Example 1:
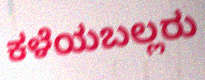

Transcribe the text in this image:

ಕಳೆಯಬಲ್ಲರು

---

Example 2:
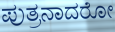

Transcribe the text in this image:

ಪುತ್ರನಾದರೋ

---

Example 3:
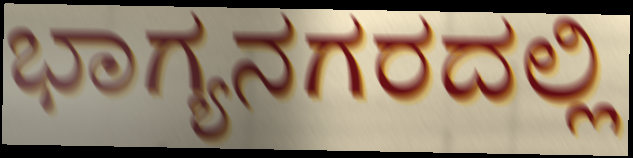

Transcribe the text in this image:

ಭಾಗ್ಯನಗರದಲ್ಲಿ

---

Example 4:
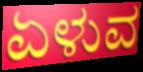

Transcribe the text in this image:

ಏಳುವ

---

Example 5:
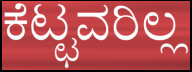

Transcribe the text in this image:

ಕೆಟ್ಟವರಿಲ್ಲ